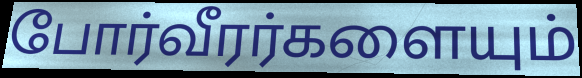
போர்வீரர்களையும்